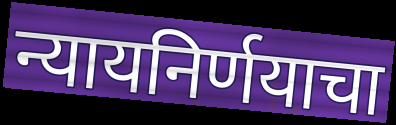
न्यायनिर्णयाचा